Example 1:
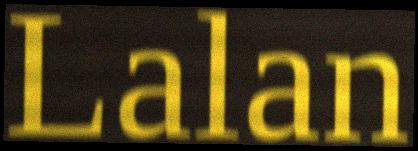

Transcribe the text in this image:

Lalan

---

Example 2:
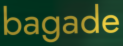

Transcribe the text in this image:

bagade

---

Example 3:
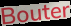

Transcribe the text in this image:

Bouter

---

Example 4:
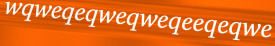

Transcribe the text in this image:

wqweqeqweqweqeeqeqwe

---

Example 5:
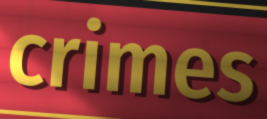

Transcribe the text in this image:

crimes